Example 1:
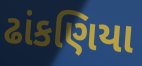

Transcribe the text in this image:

ઢાંકણિયા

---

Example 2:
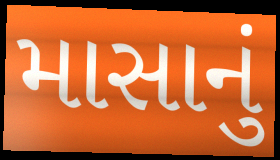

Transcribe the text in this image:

માસાનું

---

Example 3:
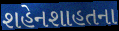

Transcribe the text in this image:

શહેનશાહતના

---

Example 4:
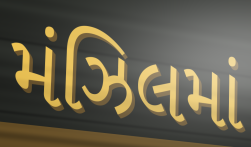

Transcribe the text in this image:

મંઝિલમાં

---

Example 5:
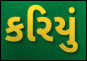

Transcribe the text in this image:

કરિયું